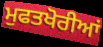
ਮੁਫਤਖੋਰੀਆਂ